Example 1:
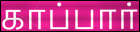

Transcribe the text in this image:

காப்பார்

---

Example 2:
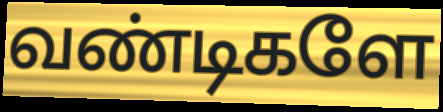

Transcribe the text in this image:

வண்டிகளே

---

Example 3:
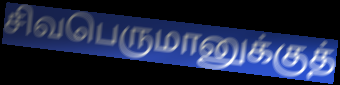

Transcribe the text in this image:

சிவபெருமானுக்குத்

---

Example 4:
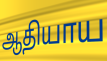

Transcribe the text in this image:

ஆதியாய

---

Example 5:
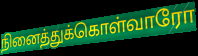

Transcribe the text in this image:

நினைத்துக்கொள்வாரோ